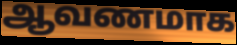
ஆவணமாக